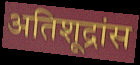
अतिशूद्रांस